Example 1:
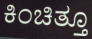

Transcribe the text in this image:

ಕಿಂಚಿತ್ತೂ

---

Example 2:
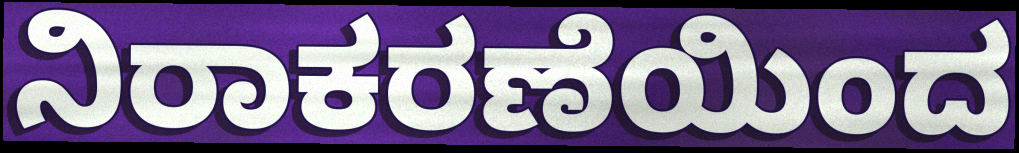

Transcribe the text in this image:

ನಿರಾಕರಣೆಯಿಂದ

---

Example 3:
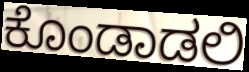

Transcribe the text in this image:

ಕೊಂಡಾಡಲಿ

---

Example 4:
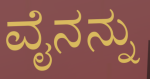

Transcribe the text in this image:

ವೈನನ್ನು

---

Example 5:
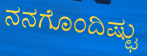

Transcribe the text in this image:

ನನಗೊಂದಿಷ್ಟು